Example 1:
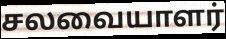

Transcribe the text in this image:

சலவையாளர்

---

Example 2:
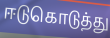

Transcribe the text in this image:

ஈடுகொடுத்து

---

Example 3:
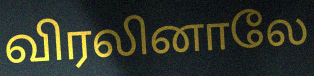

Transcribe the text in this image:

விரலினாலே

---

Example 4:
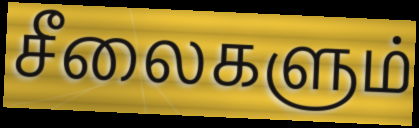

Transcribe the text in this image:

சீலைகளும்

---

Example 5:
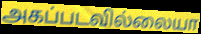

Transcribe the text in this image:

அகப்படவில்லையா